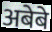
अबेबे